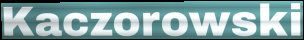
Kaczorowski